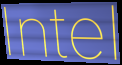
Intel